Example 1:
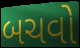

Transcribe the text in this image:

બચવો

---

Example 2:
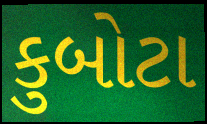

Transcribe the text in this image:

કુબોટા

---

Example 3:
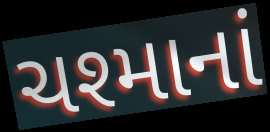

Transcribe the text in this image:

ચશ્માનાં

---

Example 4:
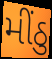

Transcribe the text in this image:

મીંઠુ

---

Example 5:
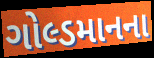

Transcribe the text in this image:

ગોલ્ડમાનના